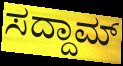
ಸದ್ದಾಮ್